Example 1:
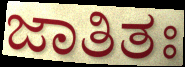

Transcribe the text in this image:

ಜಾತಿತಃ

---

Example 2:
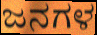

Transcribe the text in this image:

ಜನಗಳ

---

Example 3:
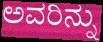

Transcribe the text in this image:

ಅವರಿನ್ನು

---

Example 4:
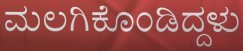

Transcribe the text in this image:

ಮಲಗಿಕೊಂಡಿದ್ದಳು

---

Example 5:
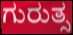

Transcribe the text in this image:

ಗುರುತ್ಸ